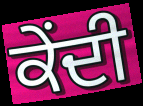
ਕੇਂਦੀ